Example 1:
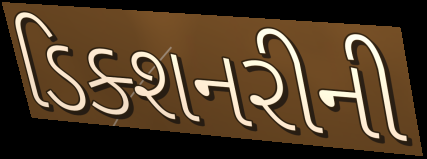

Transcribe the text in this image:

ડિક્શનરીની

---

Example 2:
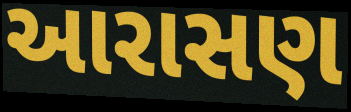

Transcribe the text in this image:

આરાસણ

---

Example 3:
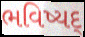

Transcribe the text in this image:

ભવિષ્યદ્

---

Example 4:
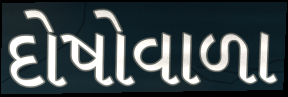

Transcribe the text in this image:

દોષોવાળા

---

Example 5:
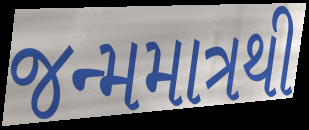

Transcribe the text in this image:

જન્મમાત્રથી